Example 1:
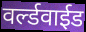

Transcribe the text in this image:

वर्ल्डवाईड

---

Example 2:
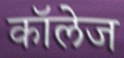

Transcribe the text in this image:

कॉलेज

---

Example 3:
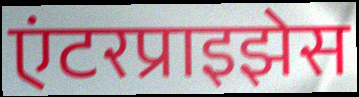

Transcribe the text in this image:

एंटरप्राइझेस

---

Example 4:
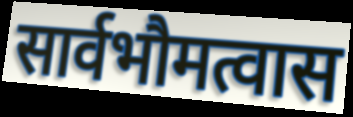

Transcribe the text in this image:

सार्वभौमत्वास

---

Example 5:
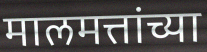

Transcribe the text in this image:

मालमत्तांच्या